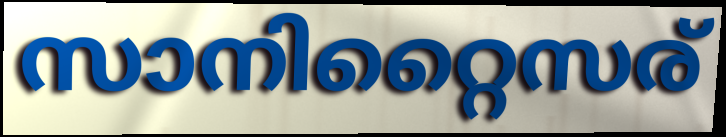
സാനിറ്റൈസര്